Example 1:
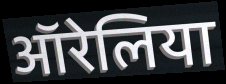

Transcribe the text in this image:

ऑरेलिया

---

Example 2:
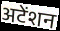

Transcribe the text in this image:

अटेंशन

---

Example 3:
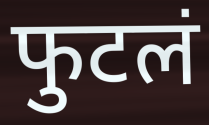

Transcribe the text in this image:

फुटलं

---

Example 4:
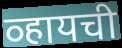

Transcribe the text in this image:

व्हायची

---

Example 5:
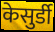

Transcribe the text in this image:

केसुर्डी